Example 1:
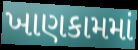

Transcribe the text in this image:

ખાણકામમાં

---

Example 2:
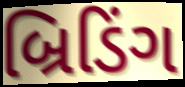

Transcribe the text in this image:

બ્રિડિંગ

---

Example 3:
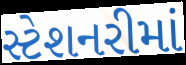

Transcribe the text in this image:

સ્ટેશનરીમાં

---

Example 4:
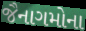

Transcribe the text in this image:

જૈનાગમોના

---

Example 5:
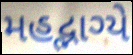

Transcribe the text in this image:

મહદ્ભાગ્યે